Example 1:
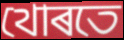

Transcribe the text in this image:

থোৰতে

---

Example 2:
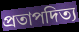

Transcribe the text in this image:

প্ৰতাপদিত্য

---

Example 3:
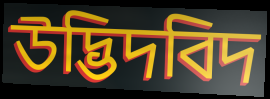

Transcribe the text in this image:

উদ্ভিদবিদ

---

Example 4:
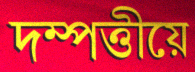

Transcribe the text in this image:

দম্পত্তীয়ে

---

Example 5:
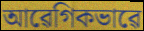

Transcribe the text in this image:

আৱেগিকভাৱে